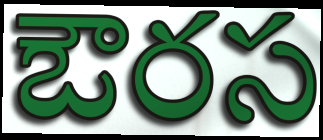
ఔరస